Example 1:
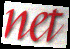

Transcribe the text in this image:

net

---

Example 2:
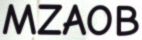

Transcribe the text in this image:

MZAOB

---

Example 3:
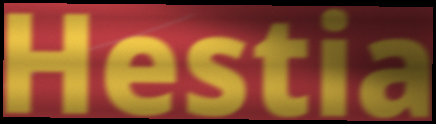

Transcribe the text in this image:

Hestia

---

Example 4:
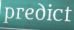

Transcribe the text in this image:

predict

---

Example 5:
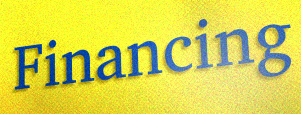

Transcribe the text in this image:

Financing